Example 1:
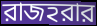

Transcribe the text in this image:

রাজহরার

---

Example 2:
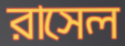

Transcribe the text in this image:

রাসেল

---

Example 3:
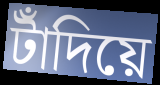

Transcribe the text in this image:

টাঁদিয়ে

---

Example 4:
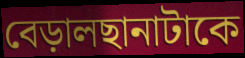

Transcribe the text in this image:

বেড়ালছানাটাকে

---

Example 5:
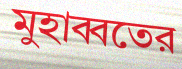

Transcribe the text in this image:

মুহাব্বতের